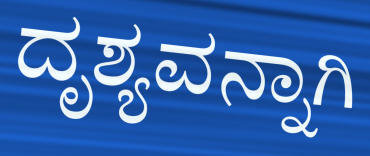
ದೃಶ್ಯವನ್ನಾಗಿ